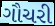
ગૌચરી